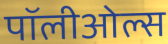
पॉलीओल्स